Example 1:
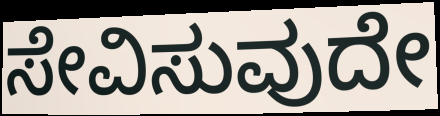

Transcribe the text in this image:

ಸೇವಿಸುವುದೇ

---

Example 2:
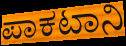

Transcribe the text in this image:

ಪಾಕಟಾನಿ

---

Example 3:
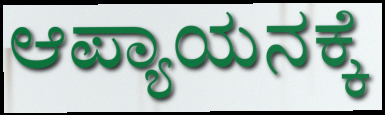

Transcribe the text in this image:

ಆಪ್ಯಾಯನಕ್ಕೆ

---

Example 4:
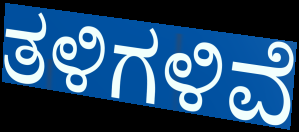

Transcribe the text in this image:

ತಳಿಗಳಿವೆ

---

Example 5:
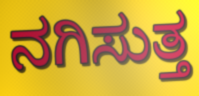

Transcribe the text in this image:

ನಗಿಸುತ್ತ